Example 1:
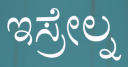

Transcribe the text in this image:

ಇಸ್ರೇಲ್ನ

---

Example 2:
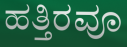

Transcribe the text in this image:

ಹತ್ತಿರವೂ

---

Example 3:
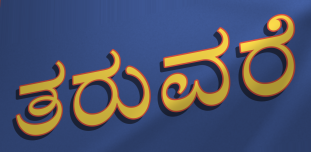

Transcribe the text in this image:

ತರುವರೆ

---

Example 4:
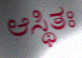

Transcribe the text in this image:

ಆಸ್ಥಿತಃ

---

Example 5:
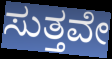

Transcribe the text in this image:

ಸುತ್ತವೇ